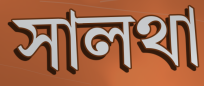
সালথা